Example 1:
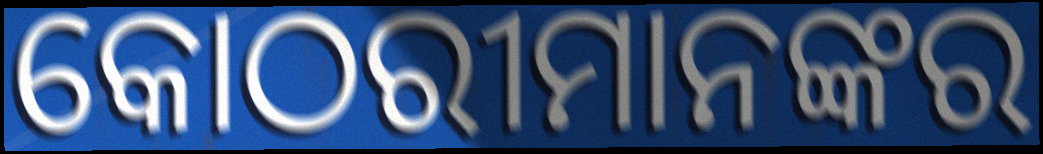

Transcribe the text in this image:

କୋଠରୀମାନଙ୍କର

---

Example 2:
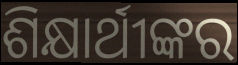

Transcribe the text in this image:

ଶିକ୍ଷାର୍ଥୀଙ୍କର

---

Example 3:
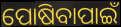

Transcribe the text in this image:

ପୋଷିବାପାଇଁ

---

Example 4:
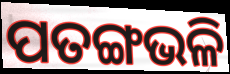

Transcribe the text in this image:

ପତଙ୍ଗଭଳି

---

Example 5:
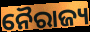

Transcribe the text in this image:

ନୈରାଜ୍ୟ